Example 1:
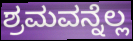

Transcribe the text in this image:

ಶ್ರಮವನ್ನೆಲ್ಲ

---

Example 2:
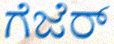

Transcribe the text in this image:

ಗೆಜೆರ್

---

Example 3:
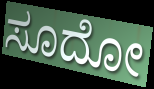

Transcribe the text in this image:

ಸೂದೋ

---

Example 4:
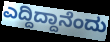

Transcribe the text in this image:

ಎದ್ದಿದ್ದಾನೆಂದು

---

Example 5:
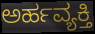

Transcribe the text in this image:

ಅರ್ಹವ್ಯಕ್ತಿ